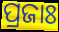
ପ୍ରଜାଃ